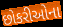
છોકરીઓના